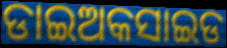
ଡାଇଅକସାଇଡ